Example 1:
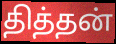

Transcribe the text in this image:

தித்தன்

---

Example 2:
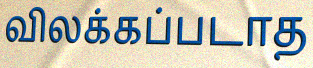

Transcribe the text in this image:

விலக்கப்படாத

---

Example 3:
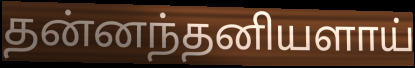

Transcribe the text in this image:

தன்னந்தனியளாய்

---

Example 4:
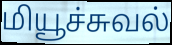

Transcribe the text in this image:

மியூச்சுவல்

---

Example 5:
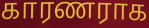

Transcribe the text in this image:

காரணராக